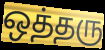
ஒத்தரு